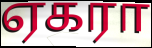
ஏகரா